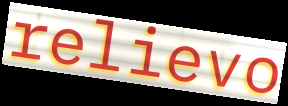
relievo